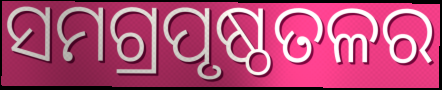
ସମଗ୍ରପୃଷ୍ଠତଳର